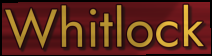
Whitlock